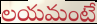
లయమంటే